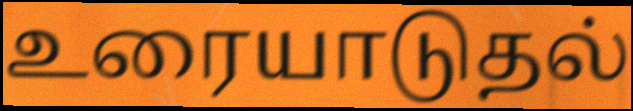
உரையாடுதல்